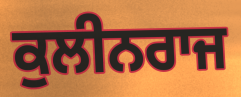
ਕੁਲੀਨਰਾਜ